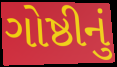
ગોષ્ઠીનું